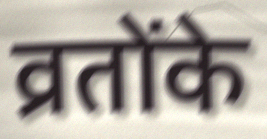
व्रतोंके